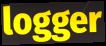
logger